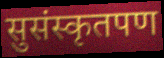
सुसंस्कृतपण